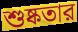
শুষ্কতার